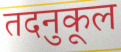
तदनुकूल